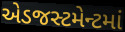
એડજસ્ટમેન્ટમાં